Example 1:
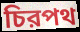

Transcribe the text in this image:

চিরপথ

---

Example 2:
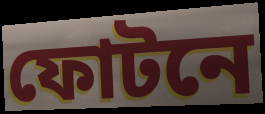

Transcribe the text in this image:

ফোটনে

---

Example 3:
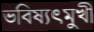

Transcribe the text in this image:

ভবিষ্যৎমুখী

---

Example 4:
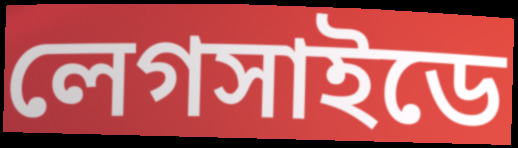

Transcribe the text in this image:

লেগসাইডে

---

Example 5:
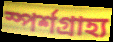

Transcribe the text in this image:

স্পর্শগ্রাহ্য